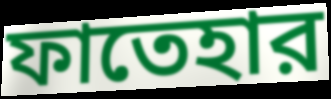
ফাতেহার